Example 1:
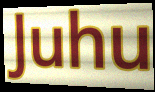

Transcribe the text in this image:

Juhu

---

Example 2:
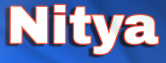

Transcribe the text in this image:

Nitya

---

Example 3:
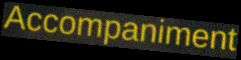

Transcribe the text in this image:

Accompaniment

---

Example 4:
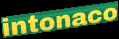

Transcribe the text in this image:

intonaco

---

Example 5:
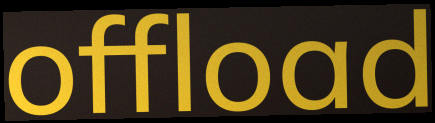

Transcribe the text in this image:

offload